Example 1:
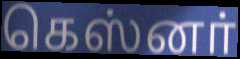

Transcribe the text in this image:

கெஸ்னர்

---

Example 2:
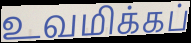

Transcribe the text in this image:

உவமிக்கப்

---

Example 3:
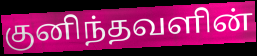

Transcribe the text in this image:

குனிந்தவளின்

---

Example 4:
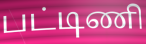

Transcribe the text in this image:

பட்டிணி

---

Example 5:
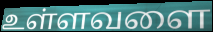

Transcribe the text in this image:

உள்ளவளை